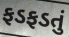
ફડફડતું